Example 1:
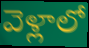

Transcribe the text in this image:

వెళ్లాలో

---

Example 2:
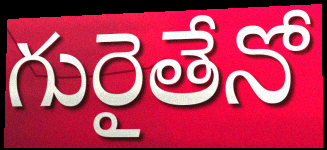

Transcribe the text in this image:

గురైతేనో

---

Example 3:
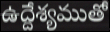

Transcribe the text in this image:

ఉద్దేశ్యముతో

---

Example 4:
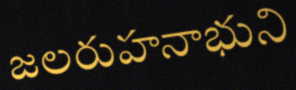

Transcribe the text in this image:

జలరుహనాభుని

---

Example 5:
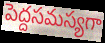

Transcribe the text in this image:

పెద్దసమస్యగా